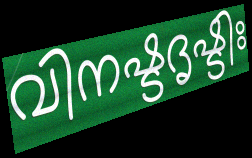
വിനഷ്ടദൃഷ്ടിഃ